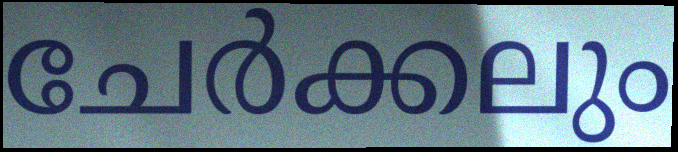
ചേർക്കലും